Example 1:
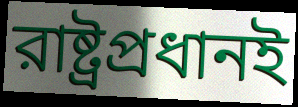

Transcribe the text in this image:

রাষ্ট্রপ্রধানই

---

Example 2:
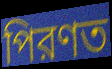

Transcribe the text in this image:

পিরণত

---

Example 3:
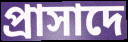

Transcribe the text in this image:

প্রাসাদে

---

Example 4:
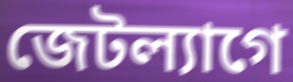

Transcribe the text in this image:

জেটল্যাগে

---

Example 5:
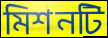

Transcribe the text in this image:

মিশনটি